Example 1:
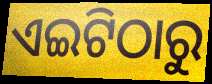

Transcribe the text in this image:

ଏଇଟିଠାରୁ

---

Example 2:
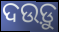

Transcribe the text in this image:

ଦଉଡ଼ୁ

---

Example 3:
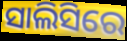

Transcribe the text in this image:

ସାଲିସିରେ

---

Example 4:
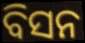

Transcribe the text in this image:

ବିସନ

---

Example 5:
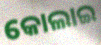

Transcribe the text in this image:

କୋଲାଇ